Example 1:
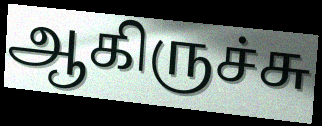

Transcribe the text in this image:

ஆகிருச்சு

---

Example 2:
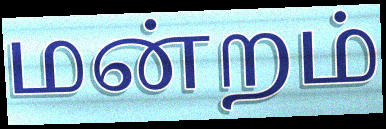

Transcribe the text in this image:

மன்றம்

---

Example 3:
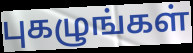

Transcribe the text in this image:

புகழுங்கள்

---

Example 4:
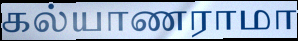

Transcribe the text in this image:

கல்யாணராமா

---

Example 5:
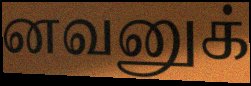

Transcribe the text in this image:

னவனுக்